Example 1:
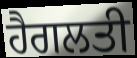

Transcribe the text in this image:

ਹੈਗਲਤੀ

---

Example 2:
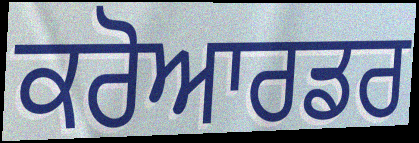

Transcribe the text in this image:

ਕਰੋਆਰਡਰ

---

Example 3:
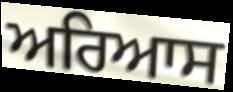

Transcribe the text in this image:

ਅਰਿਆਸ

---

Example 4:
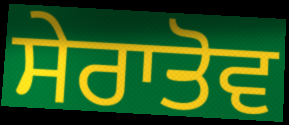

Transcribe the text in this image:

ਸੇਰਾਤੋਵ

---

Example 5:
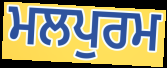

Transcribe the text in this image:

ਮਲਪੁਰਮ